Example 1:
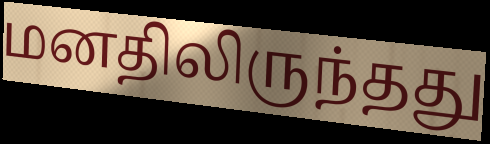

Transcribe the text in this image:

மனதிலிருந்தது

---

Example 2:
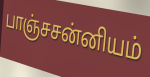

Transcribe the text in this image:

பாஞ்சசன்னியம்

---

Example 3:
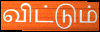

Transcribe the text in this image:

விட்டும்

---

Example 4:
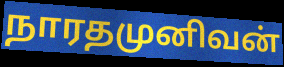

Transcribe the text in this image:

நாரதமுனிவன்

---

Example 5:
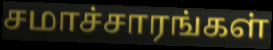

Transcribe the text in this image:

சமாச்சாரங்கள்